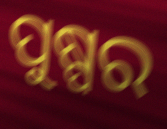
ପୁଷ୍ପର